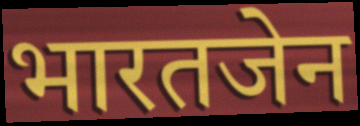
भारतजेन